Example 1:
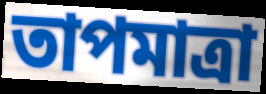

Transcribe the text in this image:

তাপমাত্ৰা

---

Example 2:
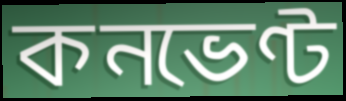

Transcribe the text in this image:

কনভেণ্ট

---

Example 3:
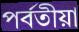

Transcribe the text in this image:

পৰ্বতীয়া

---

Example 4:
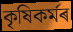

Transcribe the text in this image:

কৃষিকৰ্মৰ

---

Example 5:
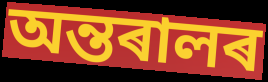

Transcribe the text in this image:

অন্তৰালৰ